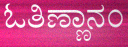
ಓತಿಣ್ಣಾನಂ